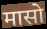
मासो